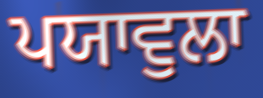
ਪਯਾਵੁਲਾ